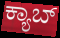
ಕ್ಯಾಬ್